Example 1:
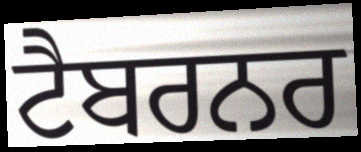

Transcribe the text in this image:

ਟੈਬਰਨਰ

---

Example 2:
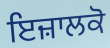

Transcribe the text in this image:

ਇਜ਼ਾਲਕੋ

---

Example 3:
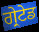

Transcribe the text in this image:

ਗ੍ਰੇਟੇਡ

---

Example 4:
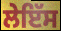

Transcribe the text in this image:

ਲੇਇੱਸ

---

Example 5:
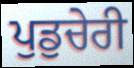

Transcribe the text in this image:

ਪੁਡੁਚੇਰੀ